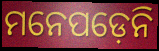
ମନେପଡ଼େନି